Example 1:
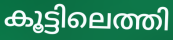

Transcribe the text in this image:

കൂട്ടിലെത്തി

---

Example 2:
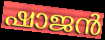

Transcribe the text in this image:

ഷാജൻ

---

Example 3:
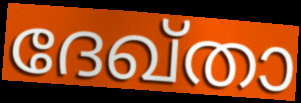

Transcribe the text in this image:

ദേഖ്താ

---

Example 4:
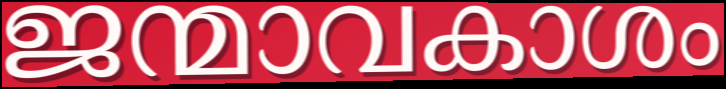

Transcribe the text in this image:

ജന്മാവകാശം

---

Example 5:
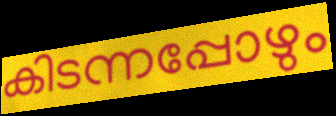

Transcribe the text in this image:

കിടന്നപ്പോഴും